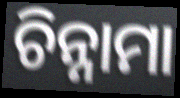
ଚିନ୍ନାମା